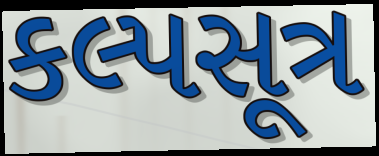
કલ્પસૂત્ર